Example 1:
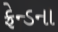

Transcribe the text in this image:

ફ્રેન્ડના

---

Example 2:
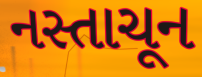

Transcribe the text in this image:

નસ્તાચૂન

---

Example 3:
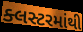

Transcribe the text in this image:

ક્લસ્ટરમાંથી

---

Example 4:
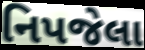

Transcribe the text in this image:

નિપજેલા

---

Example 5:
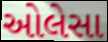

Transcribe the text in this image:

ઓલેસા